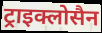
ट्राइक्लोसैन